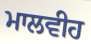
ਮਾਲਵੀਹ